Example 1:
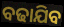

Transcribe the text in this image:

ବଢାଯିବ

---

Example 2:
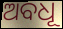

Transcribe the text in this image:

ଅବଧୂ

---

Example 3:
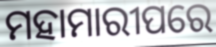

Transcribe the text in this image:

ମହାମାରୀପରେ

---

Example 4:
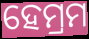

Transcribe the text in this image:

ହେମ୍ରମ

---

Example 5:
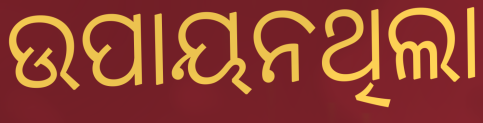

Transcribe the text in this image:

ଉପାୟନଥିଲା